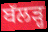
ਬੱਲੜ੍ਹ